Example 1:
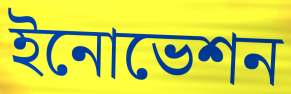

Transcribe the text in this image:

ইনোভেশন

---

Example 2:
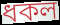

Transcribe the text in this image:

ধকল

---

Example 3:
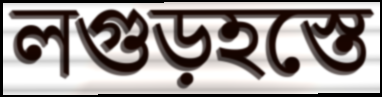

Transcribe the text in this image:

লগুড়হস্তে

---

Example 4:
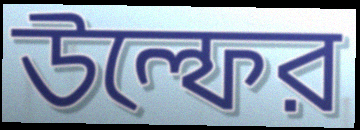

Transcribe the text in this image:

উল্ফের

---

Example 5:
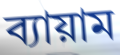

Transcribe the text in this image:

ব্যায়াম